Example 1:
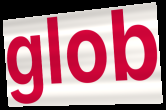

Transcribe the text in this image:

glob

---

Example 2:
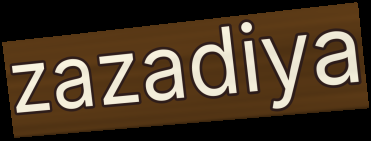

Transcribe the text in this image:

zazadiya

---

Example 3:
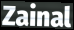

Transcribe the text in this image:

Zainal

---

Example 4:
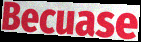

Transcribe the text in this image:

Becuase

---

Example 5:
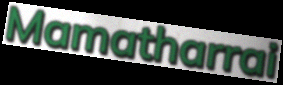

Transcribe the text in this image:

Mamatharrai